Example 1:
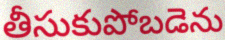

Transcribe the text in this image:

తీసుకుపోబడెను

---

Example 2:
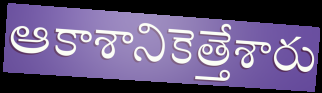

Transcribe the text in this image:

ఆకాశానికెత్తేశారు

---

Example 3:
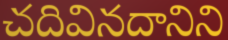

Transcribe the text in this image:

చదివినదానిని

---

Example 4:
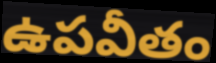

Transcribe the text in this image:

ఉపవీతం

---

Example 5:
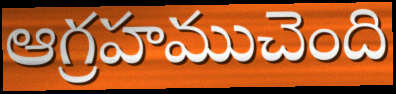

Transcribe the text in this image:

ఆగ్రహముచెంది